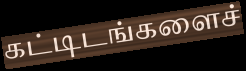
கட்டிடங்களைச்